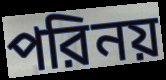
পরিনয়